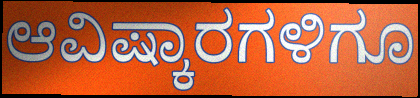
ಆವಿಷ್ಕಾರಗಳಿಗೂ